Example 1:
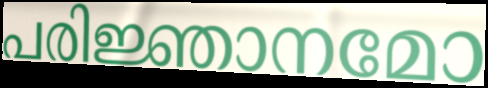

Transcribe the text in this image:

പരിജ്ഞാനമോ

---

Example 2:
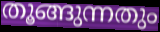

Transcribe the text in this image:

തൂങ്ങുന്നതും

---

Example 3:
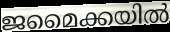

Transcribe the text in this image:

ജമൈക്കയിൽ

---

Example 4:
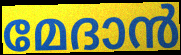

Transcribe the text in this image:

മേദാൻ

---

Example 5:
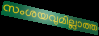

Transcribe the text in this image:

സംശയവുമില്ലാത്ത